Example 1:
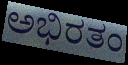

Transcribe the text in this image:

ಅಭಿರತಂ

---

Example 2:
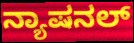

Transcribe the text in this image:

ನ್ಯಾಷನಲ್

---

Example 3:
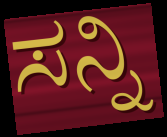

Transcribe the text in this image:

ಸನ್ನಿ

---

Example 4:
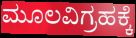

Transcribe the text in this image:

ಮೂಲವಿಗ್ರಹಕ್ಕೆ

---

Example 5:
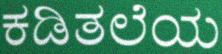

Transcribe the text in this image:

ಕಡಿತಲೆಯ